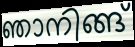
ഞാനിങ്ങ്